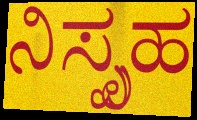
ನಿಸ್ಪೃಹ